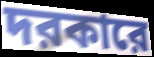
দরকারে